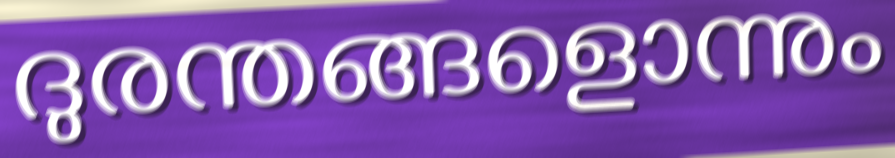
ദുരന്തങ്ങളൊന്നും